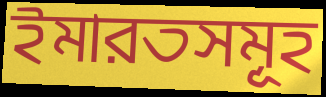
ইমারতসমূহ